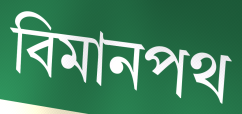
বিমানপথ